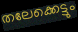
തലേക്കെട്ടും